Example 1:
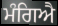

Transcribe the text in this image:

ਮੰਗਿਐ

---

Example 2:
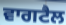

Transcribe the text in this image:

ਵਾਗਟੈਲ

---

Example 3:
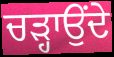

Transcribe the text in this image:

ਚੜ੍ਹਾਉਂਦੇ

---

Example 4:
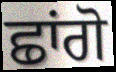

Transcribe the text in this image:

ਛਾਂਗੋ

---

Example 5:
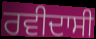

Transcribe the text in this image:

ਰਵੀਦਾਸੀ